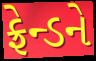
ફ્રેન્ડને